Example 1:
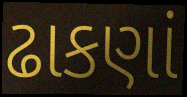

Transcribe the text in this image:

ઢાકણાં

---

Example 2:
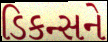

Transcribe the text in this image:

ડિકન્સને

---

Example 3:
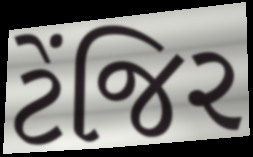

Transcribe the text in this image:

ટેંજિર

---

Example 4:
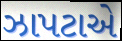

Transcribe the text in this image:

ઝાપટાએ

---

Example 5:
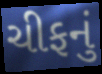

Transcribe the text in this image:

ચીફનું